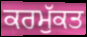
ਕਰਮੁੱਕਤ